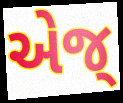
એજ્